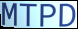
MTPD